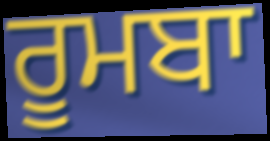
ਰੂਮਬਾ